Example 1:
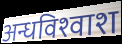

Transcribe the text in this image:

अन्धविश्वाश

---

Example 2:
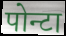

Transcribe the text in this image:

पोन्टा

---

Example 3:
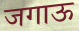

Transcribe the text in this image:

जगाऊ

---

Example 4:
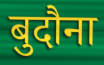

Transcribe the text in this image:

बुदौना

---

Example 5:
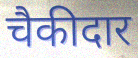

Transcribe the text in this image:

चैकीदार